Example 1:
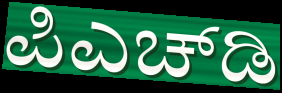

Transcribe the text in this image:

ಪಿಎಚ್‌ಡಿ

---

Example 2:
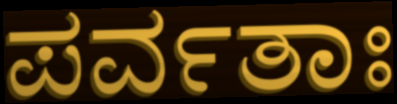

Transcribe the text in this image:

ಪರ್ವತಾಃ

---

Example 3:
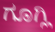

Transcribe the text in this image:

ಗೂಗ್ಲಿ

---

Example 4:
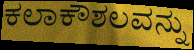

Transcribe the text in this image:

ಕಲಾಕೌಶಲವನ್ನು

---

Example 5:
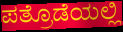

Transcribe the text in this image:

ಪತ್ರೊಡೆಯಲ್ಲಿ